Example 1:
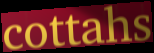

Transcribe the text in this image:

cottahs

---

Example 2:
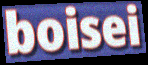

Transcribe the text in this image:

boisei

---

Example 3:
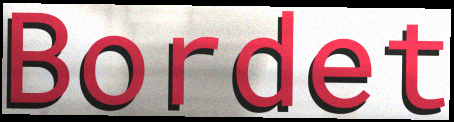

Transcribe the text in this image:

Bordet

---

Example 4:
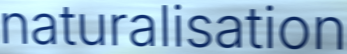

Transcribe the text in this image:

naturalisation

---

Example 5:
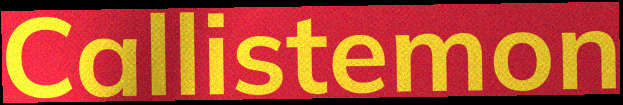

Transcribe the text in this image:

Callistemon